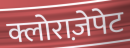
क्लोराज़ेपेट